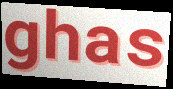
ghas